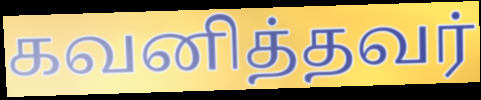
கவனித்தவர்